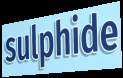
sulphide